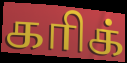
கரிக்